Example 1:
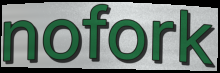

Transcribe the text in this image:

nofork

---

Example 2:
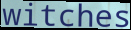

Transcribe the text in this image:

witches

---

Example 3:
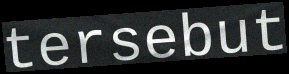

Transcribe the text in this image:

tersebut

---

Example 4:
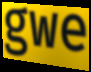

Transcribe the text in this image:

gwe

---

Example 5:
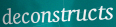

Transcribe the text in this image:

deconstructs